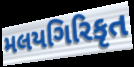
મલયગિરિકૃત